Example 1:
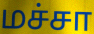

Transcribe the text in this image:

மச்சா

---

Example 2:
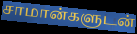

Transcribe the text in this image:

சாமான்களுடன்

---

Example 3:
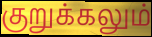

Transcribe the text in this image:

குறுக்கலும்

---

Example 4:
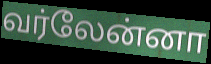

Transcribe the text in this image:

வர்லேன்னா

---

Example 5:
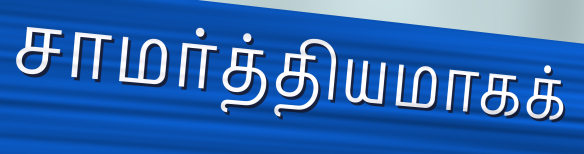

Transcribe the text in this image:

சாமர்த்தியமாகக்